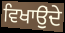
ਵਿਖਾਉੁਂਦੇ